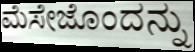
ಮೆಸೇಜೊಂದನ್ನು